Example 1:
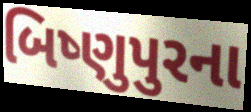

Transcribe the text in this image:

બિષ્ણુપુરના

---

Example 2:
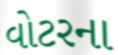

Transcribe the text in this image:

વોટરના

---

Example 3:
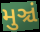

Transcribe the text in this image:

મુઞ્ચં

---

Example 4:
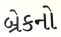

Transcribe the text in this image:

બ્રેકનો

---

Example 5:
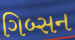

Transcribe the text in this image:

ગિબ્સન